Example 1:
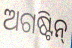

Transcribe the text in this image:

ଅଗଷ୍ଟିନ୍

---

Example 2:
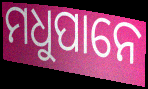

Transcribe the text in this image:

ମଧୁପାନେ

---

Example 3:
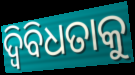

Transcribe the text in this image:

ଦ୍ୱିବିଧତାକୁ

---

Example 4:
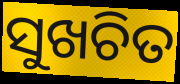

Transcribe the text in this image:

ସୁଖଚିତ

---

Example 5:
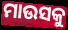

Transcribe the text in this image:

ମାଉସକୁ